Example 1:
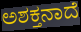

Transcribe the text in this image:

ಅಶಕ್ತನಾದೆ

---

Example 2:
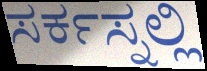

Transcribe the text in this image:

ಸರ್ಕಸ್ನಲ್ಲಿ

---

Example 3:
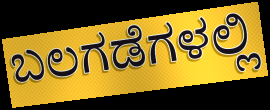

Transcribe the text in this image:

ಬಲಗಡೆಗಳಲ್ಲಿ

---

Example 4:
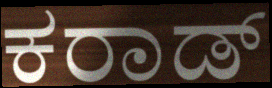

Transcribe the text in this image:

ಕರಾಡ್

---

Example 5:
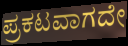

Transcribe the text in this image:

ಪ್ರಕಟವಾಗದೇ